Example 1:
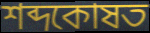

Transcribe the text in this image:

শব্দকোষত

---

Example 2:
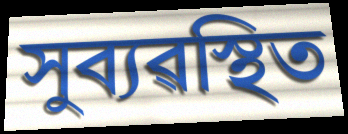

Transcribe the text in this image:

সুব্যৱস্থিত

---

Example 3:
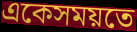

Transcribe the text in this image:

একেসময়তে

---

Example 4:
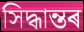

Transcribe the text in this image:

সিদ্ধান্তৰ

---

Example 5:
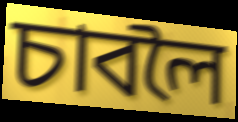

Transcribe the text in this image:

চাবলৈ